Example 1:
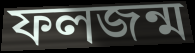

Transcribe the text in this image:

ফলজন্ম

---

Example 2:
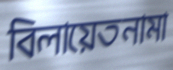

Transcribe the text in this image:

বিলায়েতনামা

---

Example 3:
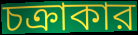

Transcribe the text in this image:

চক্রাকার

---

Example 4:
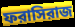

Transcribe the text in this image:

ফরাসিরাজ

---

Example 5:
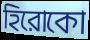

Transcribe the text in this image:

হিরোকো